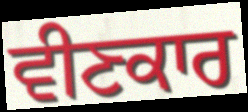
ਵੀਣਕਾਰ